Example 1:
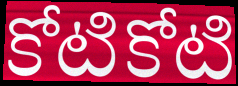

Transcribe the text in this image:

కోటికోటి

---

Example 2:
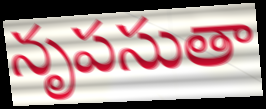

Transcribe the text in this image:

నృపసుతా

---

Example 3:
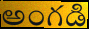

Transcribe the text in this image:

అంగడి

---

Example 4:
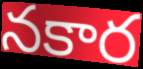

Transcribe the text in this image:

నకార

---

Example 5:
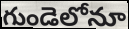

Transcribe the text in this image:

గుండెలోనూ